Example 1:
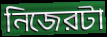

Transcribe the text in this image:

নিজেরটা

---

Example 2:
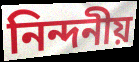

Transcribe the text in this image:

নিন্দনীয়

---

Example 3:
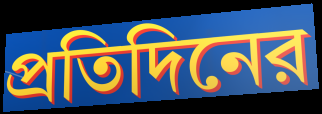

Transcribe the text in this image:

প্রতিদিনের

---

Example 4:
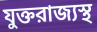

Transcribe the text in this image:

যুক্তরাজ্যস্থ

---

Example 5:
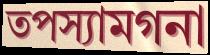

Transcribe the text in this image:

তপস্যামগনা